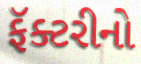
ફૅક્ટરીનો